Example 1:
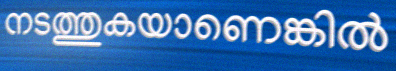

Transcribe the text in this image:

നടത്തുകയാണെങ്കിൽ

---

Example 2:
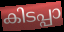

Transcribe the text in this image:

കിടപ്പാ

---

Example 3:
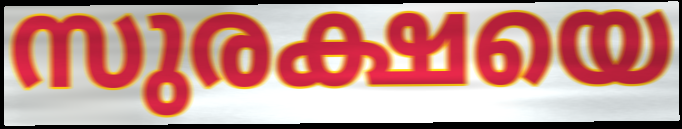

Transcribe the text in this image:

സുരക്ഷയെ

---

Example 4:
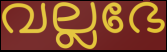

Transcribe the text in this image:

വല്ലഭേ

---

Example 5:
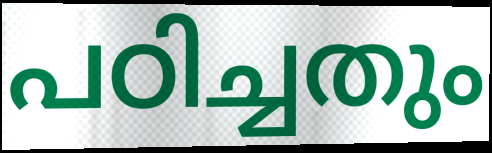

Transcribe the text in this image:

പഠിച്ചതും